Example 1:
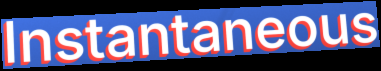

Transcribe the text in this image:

Instantaneous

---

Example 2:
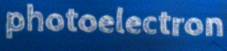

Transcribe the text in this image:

photoelectron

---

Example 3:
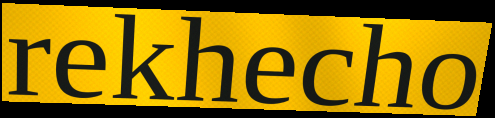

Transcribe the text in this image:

rekhecho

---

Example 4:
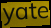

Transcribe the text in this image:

yate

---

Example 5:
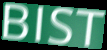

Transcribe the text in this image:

BIST